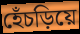
হেঁচড়িয়ে